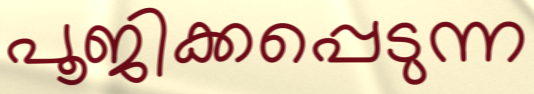
പൂജിക്കപ്പെടുന്ന